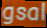
gsal